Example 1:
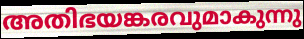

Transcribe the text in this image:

അതിഭയങ്കരവുമാകുന്നു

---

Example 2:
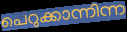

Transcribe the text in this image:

പെറുക്കാന്നിന്ന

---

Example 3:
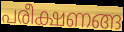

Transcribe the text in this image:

പരീക്ഷണങ്ങ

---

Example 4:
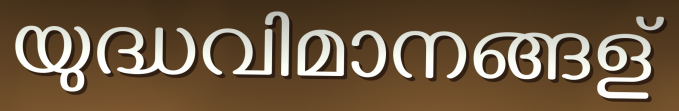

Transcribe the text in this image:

യുദ്ധവിമാനങ്ങള്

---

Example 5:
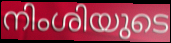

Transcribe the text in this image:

നിംശിയുടെ